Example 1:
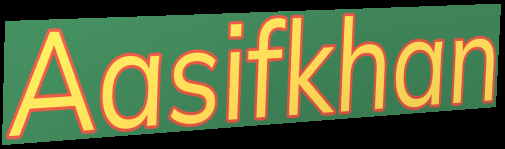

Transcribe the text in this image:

Aasifkhan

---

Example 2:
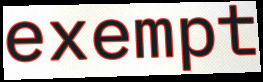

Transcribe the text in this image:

exempt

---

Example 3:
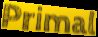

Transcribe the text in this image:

Primal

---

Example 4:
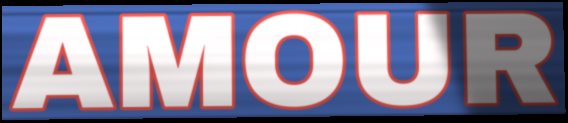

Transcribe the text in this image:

AMOUR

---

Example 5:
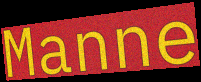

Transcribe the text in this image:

Manne